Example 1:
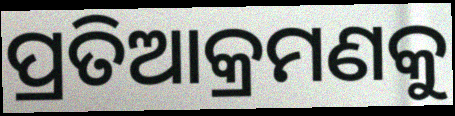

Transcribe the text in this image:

ପ୍ରତିଆକ୍ରମଣକୁ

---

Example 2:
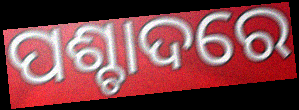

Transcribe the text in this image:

ପଶ୍ଚାଦରେ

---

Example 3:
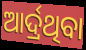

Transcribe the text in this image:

ଆର୍ଦ୍ରଥିବା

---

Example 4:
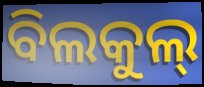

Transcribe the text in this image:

ବିଲକୁଲ୍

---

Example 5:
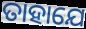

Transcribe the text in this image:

ତାହାଯେ